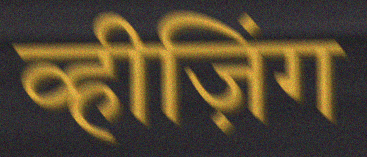
व्हीज़िंग